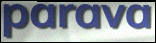
parava